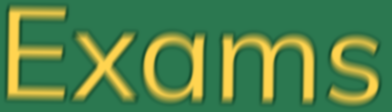
Exams